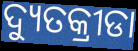
ଦ୍ୟୁତକ୍ରୀଡା